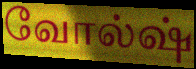
வோல்ஷ்